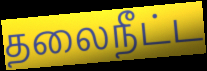
தலைநீட்ட